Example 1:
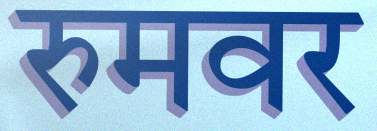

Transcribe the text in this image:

रुमवर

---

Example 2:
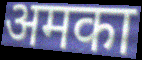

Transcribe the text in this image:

अमका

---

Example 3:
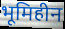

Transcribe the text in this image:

भूमिहीन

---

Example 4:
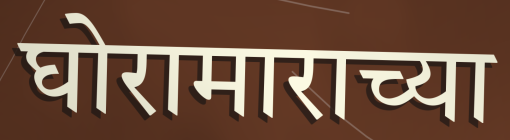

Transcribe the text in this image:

घोरामाराच्या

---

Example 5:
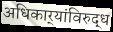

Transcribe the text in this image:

अधिकार्यांविरुद्ध